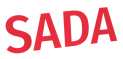
SADA